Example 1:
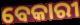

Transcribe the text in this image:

ବେକାରୀ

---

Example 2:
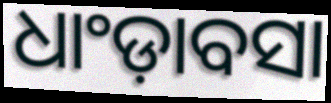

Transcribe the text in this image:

ଧାଂଡ଼ାବସା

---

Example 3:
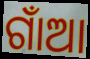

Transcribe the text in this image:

ଗାଁଆ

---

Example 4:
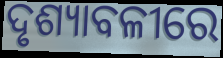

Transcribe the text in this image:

ଦୃଶ୍ୟାବଳୀରେ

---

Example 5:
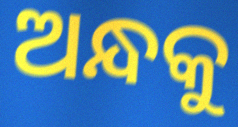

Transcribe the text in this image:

ଅନ୍ଧକୁ